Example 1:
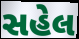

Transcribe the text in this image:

સહેલ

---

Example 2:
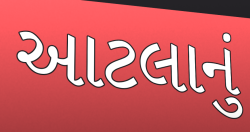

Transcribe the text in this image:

આટલાનું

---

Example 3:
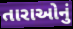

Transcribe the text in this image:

તારાઓનું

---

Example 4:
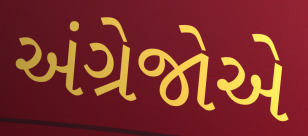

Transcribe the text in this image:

અંગ્રેજોએ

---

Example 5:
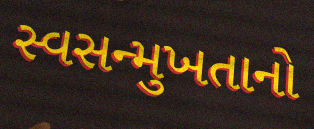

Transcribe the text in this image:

સ્વસન્મુખતાનો